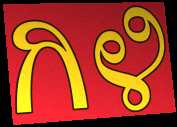
ಗಿಳಿ